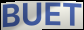
BUET